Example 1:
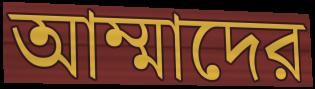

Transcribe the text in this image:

আম্মাদের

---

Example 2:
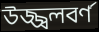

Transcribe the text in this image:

উজ্জ্বলবর্ণ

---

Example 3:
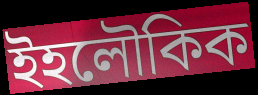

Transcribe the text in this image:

ইহলৌকিক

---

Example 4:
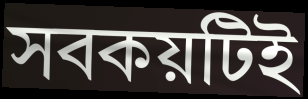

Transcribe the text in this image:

সবকয়টিই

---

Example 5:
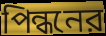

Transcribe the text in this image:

পিন্ধনের